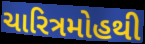
ચારિત્રમોહથી